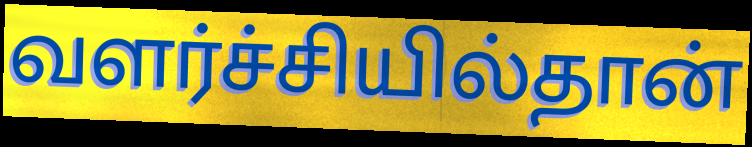
வளர்ச்சியில்தான்